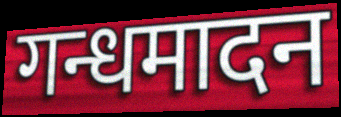
गन्धमादन